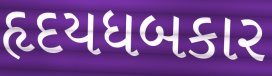
હૃદયધબકાર